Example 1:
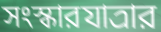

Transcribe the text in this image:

সংস্কারযাত্রার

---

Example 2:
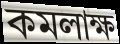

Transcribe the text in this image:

কমলাক্ষ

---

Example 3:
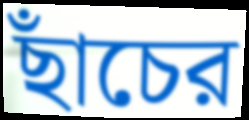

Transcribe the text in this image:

ছাঁচের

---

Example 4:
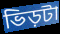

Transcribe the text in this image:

ভিড়টা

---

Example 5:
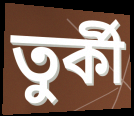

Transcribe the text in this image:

তুর্কী